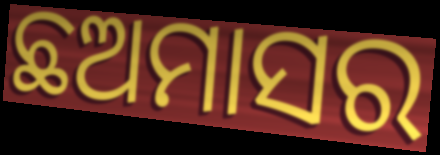
ଛଅମାସର